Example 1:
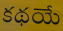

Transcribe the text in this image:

కథయే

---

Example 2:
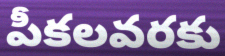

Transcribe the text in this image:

పీకలవరకు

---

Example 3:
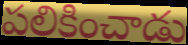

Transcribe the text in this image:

పలికించాడు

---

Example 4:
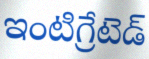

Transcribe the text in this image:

ఇంటిగ్రేటెడ్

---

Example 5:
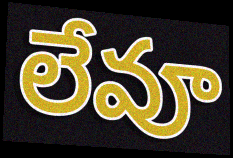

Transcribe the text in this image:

లేవూ